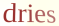
dries